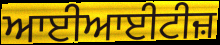
ਆਈਆਈਟੀਜ਼